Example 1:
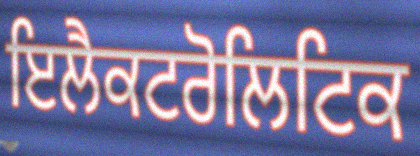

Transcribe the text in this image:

ਇਲੈਕਟਰੋਲਿਟਿਕ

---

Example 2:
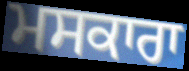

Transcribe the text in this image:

ਮਸਕਾਰਾ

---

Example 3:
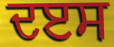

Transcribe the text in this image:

ਦੲਸ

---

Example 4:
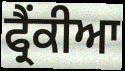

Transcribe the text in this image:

ਫ੍ਰੈਂਕੀਆ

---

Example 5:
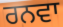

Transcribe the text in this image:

ਰਨਵਾ